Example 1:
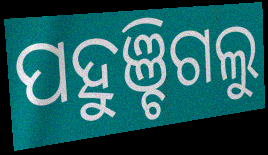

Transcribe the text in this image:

ପହୁଞ୍ଚିଗଲୁ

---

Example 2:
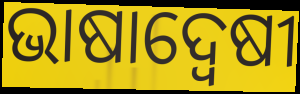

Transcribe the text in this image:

ଭାଷାଦ୍ଵେଷୀ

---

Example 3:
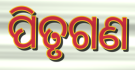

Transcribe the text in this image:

ପିତୃଗଣ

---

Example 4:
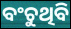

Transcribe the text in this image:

ବଂଚୁଥିବି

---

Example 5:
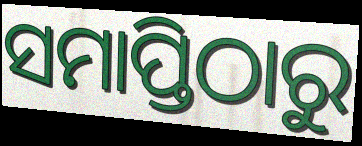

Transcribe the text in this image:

ସମାପ୍ତିଠାରୁ